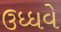
ઉધ્ધવે